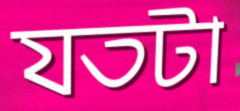
যতটা